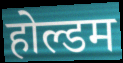
होल्डम